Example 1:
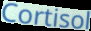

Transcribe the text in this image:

Cortisol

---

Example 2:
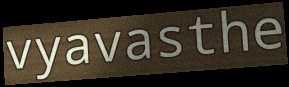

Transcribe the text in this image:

vyavasthe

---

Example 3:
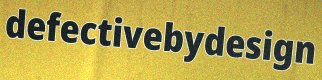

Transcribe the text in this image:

defectivebydesign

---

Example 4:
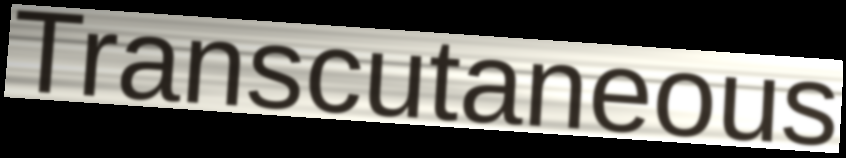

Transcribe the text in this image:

Transcutaneous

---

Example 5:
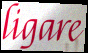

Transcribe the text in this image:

ligare